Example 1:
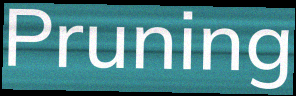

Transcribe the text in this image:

Pruning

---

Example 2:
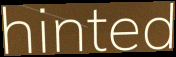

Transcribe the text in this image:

hinted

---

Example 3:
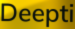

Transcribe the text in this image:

Deepti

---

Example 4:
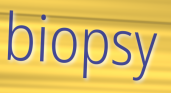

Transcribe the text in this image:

biopsy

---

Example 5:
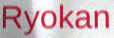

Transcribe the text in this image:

Ryokan